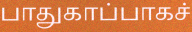
பாதுகாப்பாகச்